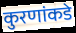
कुरणांकडे